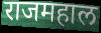
राजमहाल